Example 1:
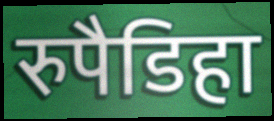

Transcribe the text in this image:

रुपैडिहा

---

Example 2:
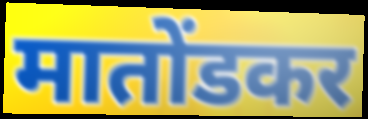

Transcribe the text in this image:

मातोंडकर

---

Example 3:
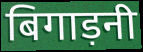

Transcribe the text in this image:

बिगाड़नी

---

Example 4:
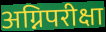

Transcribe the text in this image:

अग्निपरीक्षा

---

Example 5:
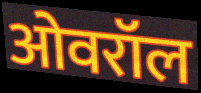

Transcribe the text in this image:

ओवरॉल